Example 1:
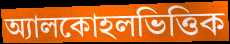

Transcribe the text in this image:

অ্যালকোহলভিত্তিক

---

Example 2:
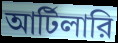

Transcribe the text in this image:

আর্টিলারি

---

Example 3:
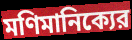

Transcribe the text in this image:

মণিমানিক্যের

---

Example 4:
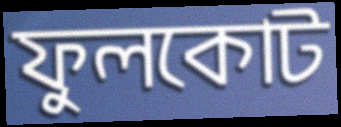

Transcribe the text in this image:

ফুলকোট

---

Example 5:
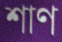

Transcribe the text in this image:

শাণ